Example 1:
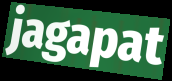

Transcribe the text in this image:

jagapat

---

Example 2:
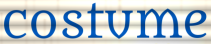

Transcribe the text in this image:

costume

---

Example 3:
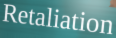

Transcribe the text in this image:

Retaliation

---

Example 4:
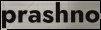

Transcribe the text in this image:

prashno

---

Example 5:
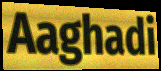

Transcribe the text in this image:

Aaghadi